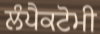
ਲੰਪੈਕਟੋਮੀ